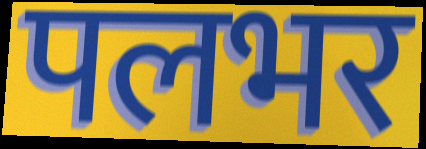
पलभर